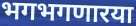
भगभगणारया